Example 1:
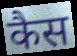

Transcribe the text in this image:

कैस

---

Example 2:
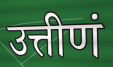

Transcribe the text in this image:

उत्तीणं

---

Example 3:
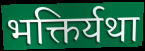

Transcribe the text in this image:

भक्तिर्यथा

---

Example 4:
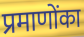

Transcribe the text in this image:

प्रमाणोंका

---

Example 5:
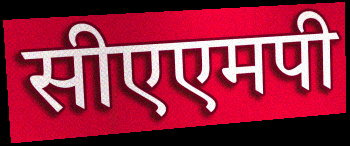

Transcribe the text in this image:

सीएएमपी